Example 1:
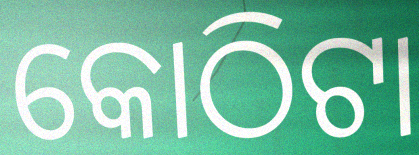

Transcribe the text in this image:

କୋଠିଟା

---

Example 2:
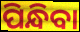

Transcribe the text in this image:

ପିନ୍ଧିବା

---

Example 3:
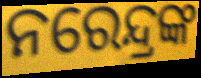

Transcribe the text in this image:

ନରେନ୍ଦ୍ରଙ୍କ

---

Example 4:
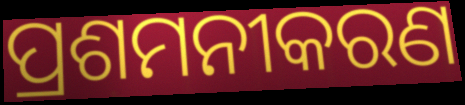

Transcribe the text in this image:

ପ୍ରଶମନୀକରଣ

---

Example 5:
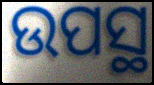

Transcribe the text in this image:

ଉପସ୍ଥ